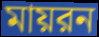
মায়রন